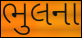
ભુલના